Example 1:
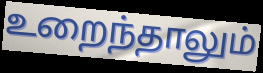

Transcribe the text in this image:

உறைந்தாலும்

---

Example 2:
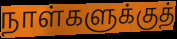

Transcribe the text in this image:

நாள்களுக்குத்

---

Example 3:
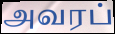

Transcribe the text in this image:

அவரப்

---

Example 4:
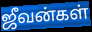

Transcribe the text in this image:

ஜீவன்கள்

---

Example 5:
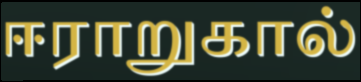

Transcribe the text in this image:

ஈராறுகால்